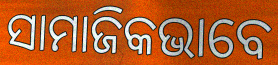
ସାମାଜିକଭାବେ